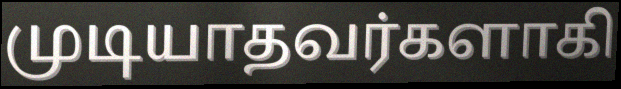
முடியாதவர்களாகி